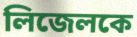
লিজেলকে